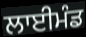
ਲਾਈਮੰਡ